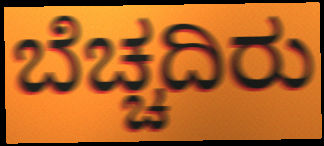
ಬೆಚ್ಚದಿರು